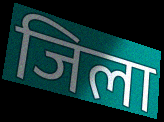
जिला